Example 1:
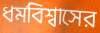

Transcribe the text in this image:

ধর্মবিশ্বাসের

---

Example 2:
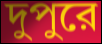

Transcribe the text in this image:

দুপুরে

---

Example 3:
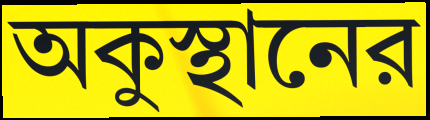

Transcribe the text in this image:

অকুস্থানের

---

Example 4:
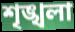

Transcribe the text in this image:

শৃঙ্খলা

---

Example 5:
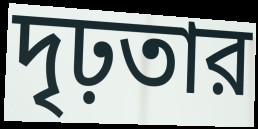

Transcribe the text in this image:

দৃঢ়তার